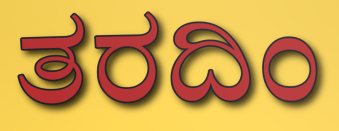
ತರದಿಂ